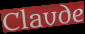
Claude